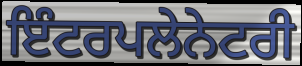
ਇੰਟਰਪਲੇਨੇਟਰੀ